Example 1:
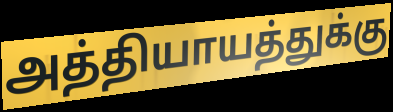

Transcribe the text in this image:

அத்தியாயத்துக்கு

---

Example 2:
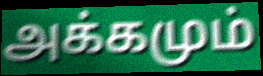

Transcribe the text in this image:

அக்கமும்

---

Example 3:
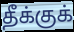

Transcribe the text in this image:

தீக்குக்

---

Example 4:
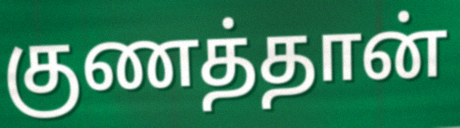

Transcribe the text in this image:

குணத்தான்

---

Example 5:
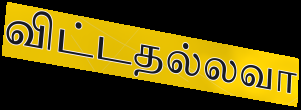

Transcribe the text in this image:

விட்டதல்லவா